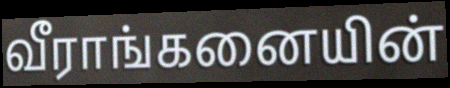
வீராங்கனையின்